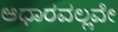
ಆಧಾರವಲ್ಲವೇ